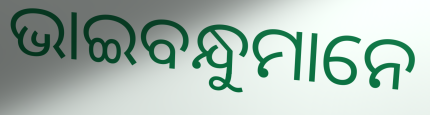
ଭାଇବନ୍ଧୁମାନେ